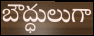
బౌద్ధులుగా